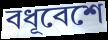
বধূবেশে